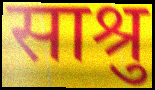
साश्रु